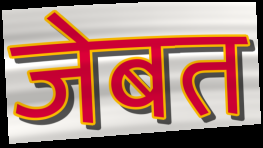
जेबत